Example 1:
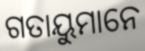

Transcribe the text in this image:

ଗତାୟୁମାନେ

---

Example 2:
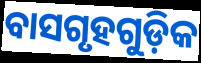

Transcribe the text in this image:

ବାସଗୃହଗୁଡ଼ିକ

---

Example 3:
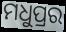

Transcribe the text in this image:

ମଧୁପ୍ରର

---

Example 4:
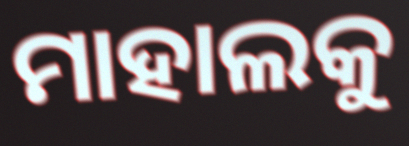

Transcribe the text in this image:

ମାହାଲକୁ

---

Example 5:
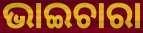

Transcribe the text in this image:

ଭାଇଚାରା